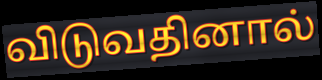
விடுவதினால்